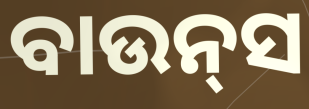
ବାଉନ୍‍ସ